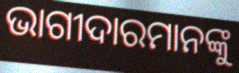
ଭାଗୀଦାରମାନଙ୍କୁ